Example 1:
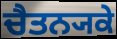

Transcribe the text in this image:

ਚੈਤਨ੍ਯਕੇ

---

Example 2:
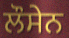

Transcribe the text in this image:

ਲੌਸੇਨ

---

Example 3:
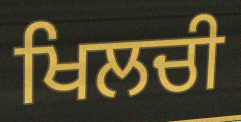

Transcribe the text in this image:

ਖਿਲਚੀ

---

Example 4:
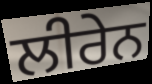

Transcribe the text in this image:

ਲੀਰੇਨ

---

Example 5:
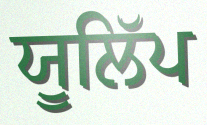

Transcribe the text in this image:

ਯੂਲਿੱਪ